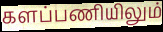
களப்பணியிலும்